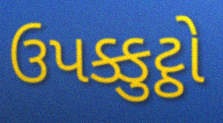
ઉપક્કુટ્ઠો